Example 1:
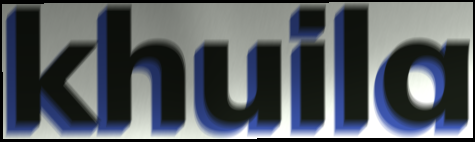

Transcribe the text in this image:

khuila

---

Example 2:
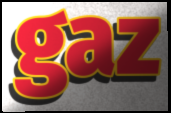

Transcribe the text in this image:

gaz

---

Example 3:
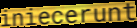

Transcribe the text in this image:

iniecerunt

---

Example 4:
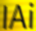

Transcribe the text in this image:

IAi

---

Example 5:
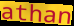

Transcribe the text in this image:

athan